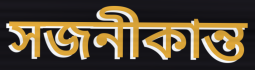
সজনীকান্ত